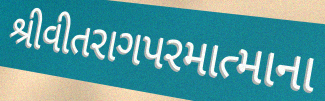
શ્રીવીતરાગપરમાત્માના